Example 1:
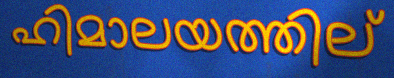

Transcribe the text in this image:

ഹിമാലയത്തില്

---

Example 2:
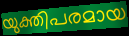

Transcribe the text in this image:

യുക്തിപരമായ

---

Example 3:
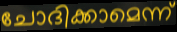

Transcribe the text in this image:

ചോദിക്കാമെന്ന്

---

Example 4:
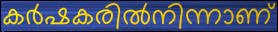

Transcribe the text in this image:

കർഷകരിൽനിന്നാണ്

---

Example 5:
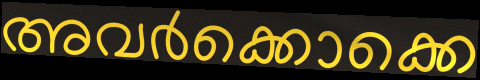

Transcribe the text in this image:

അവർക്കൊക്കെ